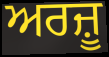
ਅਰਜ਼ੂ